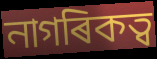
নাগৰিকত্ব